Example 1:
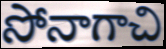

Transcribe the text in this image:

సోనాగాచి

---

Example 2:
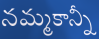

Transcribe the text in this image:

నమ్మకాన్నీ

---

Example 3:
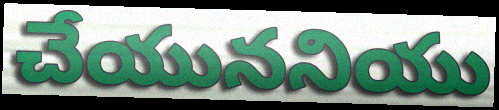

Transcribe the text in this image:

చేయుననియు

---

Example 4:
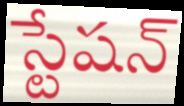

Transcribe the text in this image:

స్టేషన్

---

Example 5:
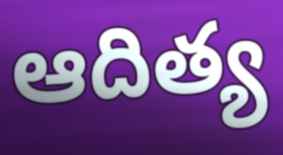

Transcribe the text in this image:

ఆదిత్య